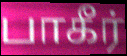
பாகீர்